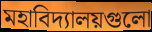
মহাবিদ্যালয়গুলো